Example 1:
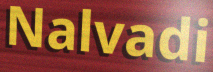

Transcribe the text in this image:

Nalvadi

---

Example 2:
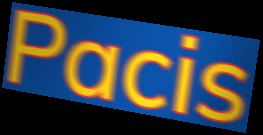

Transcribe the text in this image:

Pacis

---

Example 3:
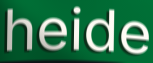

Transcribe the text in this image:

heide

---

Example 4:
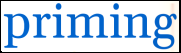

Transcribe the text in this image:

priming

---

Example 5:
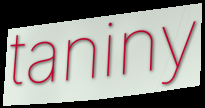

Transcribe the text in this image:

taniny